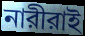
নারীরাই